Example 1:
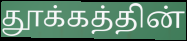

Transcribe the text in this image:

தூக்கத்தின்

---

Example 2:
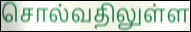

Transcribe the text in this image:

சொல்வதிலுள்ள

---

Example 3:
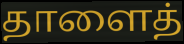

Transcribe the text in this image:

தாளைத்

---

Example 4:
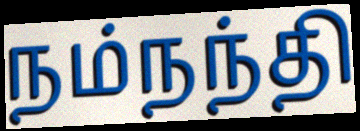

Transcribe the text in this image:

நம்நந்தி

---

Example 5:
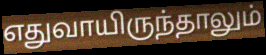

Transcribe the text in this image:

எதுவாயிருந்தாலும்